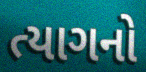
ત્યાગનો